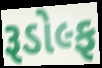
રૂડોલ્ફ